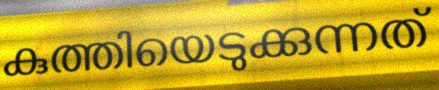
കുത്തിയെടുക്കുന്നത്